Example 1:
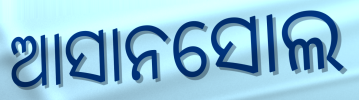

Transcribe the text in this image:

ଆସାନସୋଲ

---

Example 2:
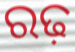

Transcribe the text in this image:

ରଢ଼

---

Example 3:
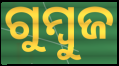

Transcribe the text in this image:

ଗୁମ୍ବୁଜ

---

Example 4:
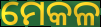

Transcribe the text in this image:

ମେକଳ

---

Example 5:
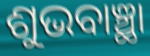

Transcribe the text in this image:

ଶୁଭବାଞ୍ଛା